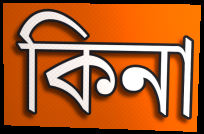
কিনা